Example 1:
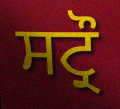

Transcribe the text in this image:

ਸਟ੍ਰੌ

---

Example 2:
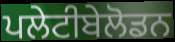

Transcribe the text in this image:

ਪਲੇਟੀਬੇਲੋਡਨ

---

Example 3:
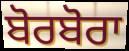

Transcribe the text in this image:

ਬੋਰਬੋਰਾ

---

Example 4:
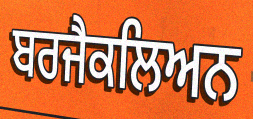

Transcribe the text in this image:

ਬਰਜੈਕਲਿਅਨ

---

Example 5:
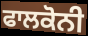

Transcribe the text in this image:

ਫਾਲਕੋਨੀ